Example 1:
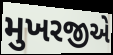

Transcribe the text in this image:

મુખરજીએ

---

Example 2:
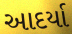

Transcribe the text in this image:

આદર્યા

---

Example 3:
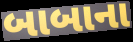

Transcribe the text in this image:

બાબાના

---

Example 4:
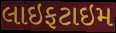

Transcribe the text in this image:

લાઇફટાઇમ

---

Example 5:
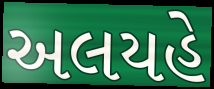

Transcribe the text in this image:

અલયહે